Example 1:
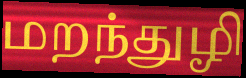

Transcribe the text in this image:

மறந்துழி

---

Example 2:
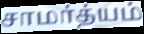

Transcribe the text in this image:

சாமர்த்யம்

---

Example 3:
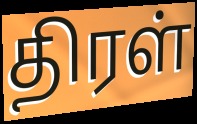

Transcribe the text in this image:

திரள்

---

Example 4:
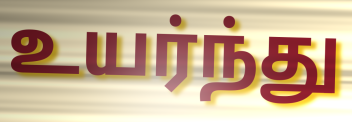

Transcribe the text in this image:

உயர்ந்து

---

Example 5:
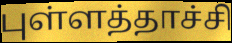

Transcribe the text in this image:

புள்ளத்தாச்சி